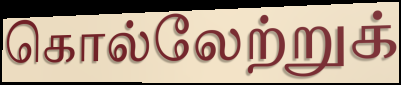
கொல்லேற்றுக்